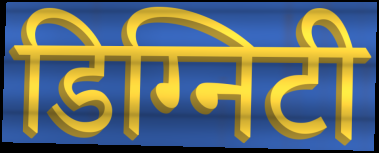
डिग्निटी